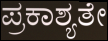
ಪ್ರಕಾಶ್ಯತೇ